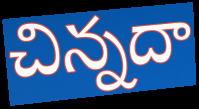
చిన్నదా